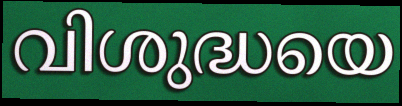
വിശുദ്ധയെ